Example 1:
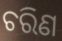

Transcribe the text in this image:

ଚରିଣ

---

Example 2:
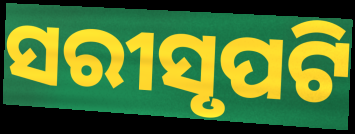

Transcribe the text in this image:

ସରୀସୃପଟି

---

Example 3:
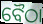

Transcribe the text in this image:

ବୈଠା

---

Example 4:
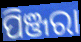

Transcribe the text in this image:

ପିଞ୍ଜରା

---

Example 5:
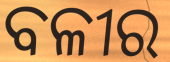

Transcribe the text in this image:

ବଳୀର